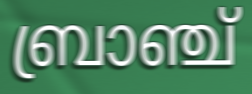
ബ്രാഞ്ച്